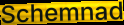
Schemnad